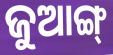
ଜୁଆଙ୍ଗ୍